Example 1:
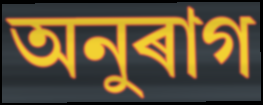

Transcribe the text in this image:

অনুৰাগ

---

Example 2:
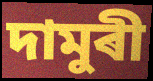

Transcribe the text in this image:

দামুৰী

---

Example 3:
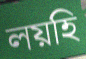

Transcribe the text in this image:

লয়হি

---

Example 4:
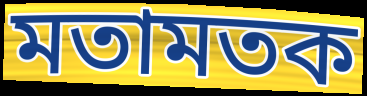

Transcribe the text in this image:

মতামতক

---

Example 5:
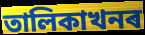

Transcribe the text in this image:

তালিকাখনৰ